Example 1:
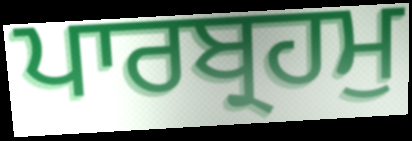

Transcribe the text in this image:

ਪਾਰਬ੍ਰਹਮੁ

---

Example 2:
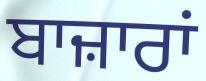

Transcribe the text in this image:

ਬਾਜ਼ਾਰਾਂ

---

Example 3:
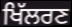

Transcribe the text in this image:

ਖਿੱਲਰਣ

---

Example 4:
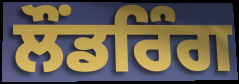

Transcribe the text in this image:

ਲੌਂਡਰਿੰਗ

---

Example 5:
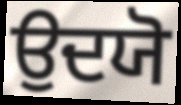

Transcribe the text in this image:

ਉਦਯੋ